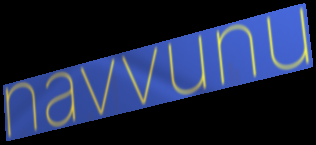
navvunu